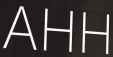
AHH